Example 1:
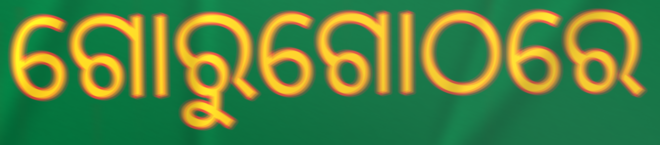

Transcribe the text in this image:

ଗୋରୁଗୋଠରେ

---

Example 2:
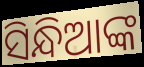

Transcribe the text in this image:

ସିନ୍ଧିଆଙ୍କ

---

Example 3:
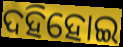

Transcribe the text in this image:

ଦହିହୋଇ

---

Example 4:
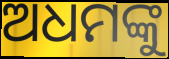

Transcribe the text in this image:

ଅଧମଙ୍କୁ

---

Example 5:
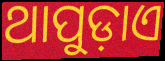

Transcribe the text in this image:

ଥାପୁଡ଼ାଏ